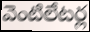
వెంటిలేటర్ల